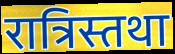
रात्रिस्तथा